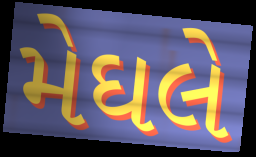
મેઘલે